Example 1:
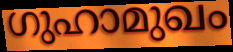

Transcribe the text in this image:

ഗുഹാമുഖം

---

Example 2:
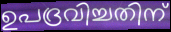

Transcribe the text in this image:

ഉപദ്രവിച്ചതിന്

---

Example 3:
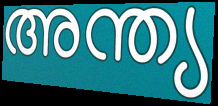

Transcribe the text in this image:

അന്ത്യ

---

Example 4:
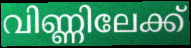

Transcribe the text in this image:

വിണ്ണിലേക്ക്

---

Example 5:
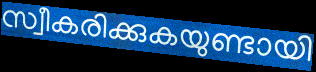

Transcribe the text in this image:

സ്വീകരിക്കുകയുണ്ടായി